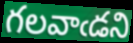
గలవాఁడని